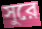
সুরে